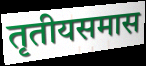
तृतीयसमास